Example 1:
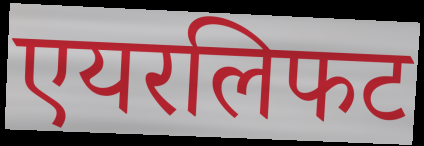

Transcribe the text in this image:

एयरलिफट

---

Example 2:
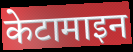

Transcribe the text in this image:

केटामाइन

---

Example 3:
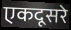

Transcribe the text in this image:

एकदूसरे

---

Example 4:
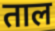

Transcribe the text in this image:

ताल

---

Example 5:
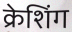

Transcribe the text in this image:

क्रेशिंग